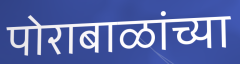
पोराबाळांच्या